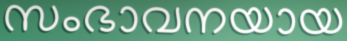
സംഭാവനയായ